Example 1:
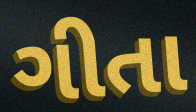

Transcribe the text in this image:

ગીતા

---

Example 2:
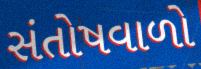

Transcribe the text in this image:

સંતોષવાળો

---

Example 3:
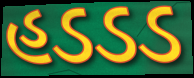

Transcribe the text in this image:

હડડડ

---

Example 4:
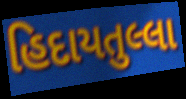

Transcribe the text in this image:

હિદાયતુલ્લા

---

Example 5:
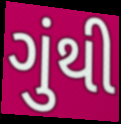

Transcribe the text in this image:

ગુંથી